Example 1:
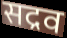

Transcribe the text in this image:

सद्रव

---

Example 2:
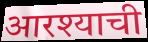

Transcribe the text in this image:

आरश्याची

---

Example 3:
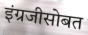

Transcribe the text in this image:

इंग्रजीसोबत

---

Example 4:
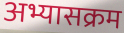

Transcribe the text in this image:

अभ्यासक्रम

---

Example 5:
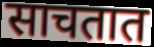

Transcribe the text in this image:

साचतात